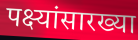
पक्ष्यांसारख्या